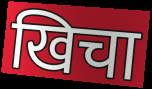
खिचा